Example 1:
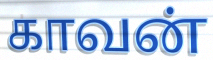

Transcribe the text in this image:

காவன்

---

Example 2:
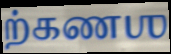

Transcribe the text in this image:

ற்கணஶ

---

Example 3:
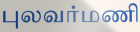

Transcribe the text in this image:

புலவர்மணி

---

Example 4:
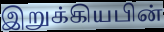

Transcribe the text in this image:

இறுக்கியபின்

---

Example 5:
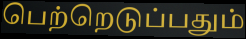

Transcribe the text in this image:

பெற்றெடுப்பதும்